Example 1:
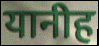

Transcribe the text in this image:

यानीह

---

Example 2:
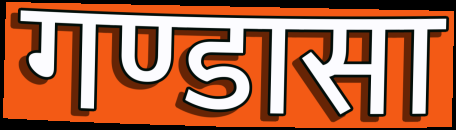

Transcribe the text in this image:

गण्डासा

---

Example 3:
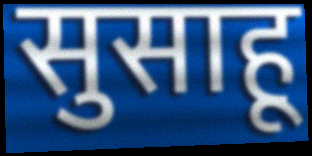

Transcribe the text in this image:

सुसाहू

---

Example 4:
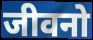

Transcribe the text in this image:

जीवनो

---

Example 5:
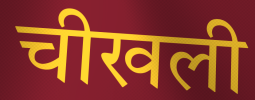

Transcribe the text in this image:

चीखली